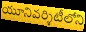
యూనివర్శిటీలోని